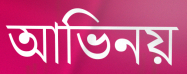
আভিনয়